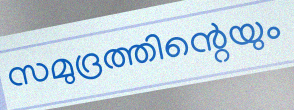
സമുദ്രത്തിന്റെയും